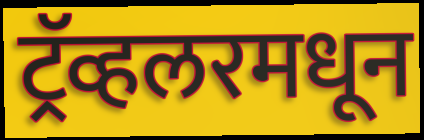
ट्रॅव्हलरमधून